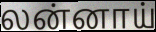
லன்னாய்